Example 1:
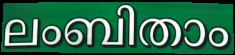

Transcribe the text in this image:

ലംബിതാം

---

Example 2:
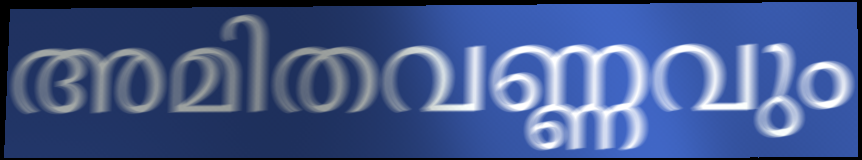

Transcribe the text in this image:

അമിതവണ്ണവും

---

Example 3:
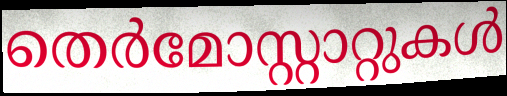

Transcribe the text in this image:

തെർമോസ്റ്റാറ്റുകൾ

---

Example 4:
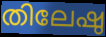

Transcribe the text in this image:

തിലേഷു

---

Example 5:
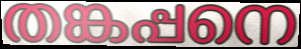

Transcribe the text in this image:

തങ്കപ്പനെ